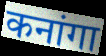
कनांगा